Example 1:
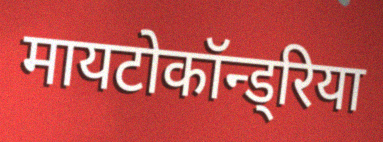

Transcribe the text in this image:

मायटोकॉन्ड्रिया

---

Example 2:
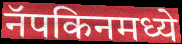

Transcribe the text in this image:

नॅपकिनमध्ये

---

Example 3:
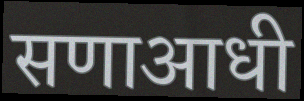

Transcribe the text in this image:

सणाआधी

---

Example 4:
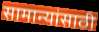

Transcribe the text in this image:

सामान्यांसाठी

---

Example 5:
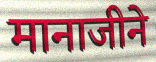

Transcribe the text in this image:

मानाजीने